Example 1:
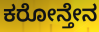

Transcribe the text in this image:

ಕರೋನ್ತೇನ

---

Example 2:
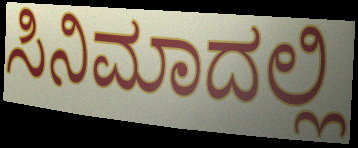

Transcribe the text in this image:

ಸಿನಿಮಾದಲ್ಲಿ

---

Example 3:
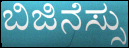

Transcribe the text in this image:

ಬಿಜಿನೆಸ್ಸು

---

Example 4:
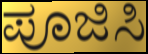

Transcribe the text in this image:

ಪೂಜಿಸಿ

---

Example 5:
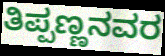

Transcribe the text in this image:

ತಿಪ್ಪಣ್ಣನವರ